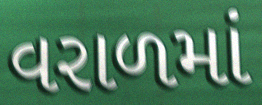
વરાળમાં